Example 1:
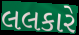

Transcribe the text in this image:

લલકારે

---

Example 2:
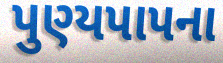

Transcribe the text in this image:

પુણ્યપાપના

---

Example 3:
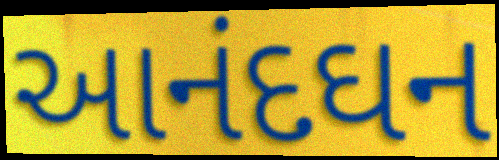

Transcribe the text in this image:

આનંદઘન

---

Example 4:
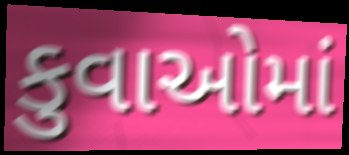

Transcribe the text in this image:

કુવાઓમાં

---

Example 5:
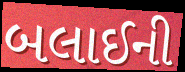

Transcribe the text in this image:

બલાઈની